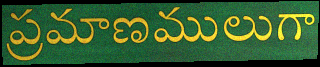
ప్రమాణములుగా